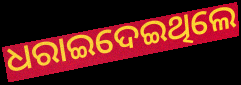
ଧରାଇଦେଇଥିଲେ